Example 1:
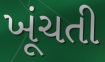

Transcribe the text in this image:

ખૂંચતી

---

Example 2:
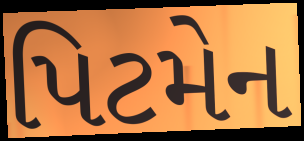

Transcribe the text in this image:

પિટમેન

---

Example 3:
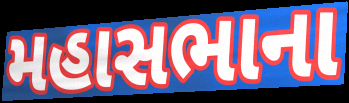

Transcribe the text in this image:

મહાસભાના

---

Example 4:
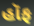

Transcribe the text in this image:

હૉફ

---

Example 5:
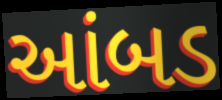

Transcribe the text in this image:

આંબડ